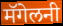
मॅगेलनी